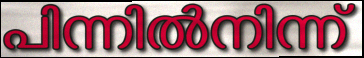
പിന്നിൽനിന്ന്